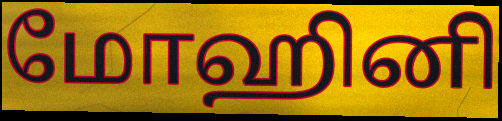
மோஹினி